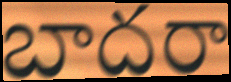
బాదరా